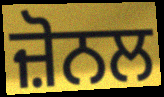
ਜ਼ੋਨਲ